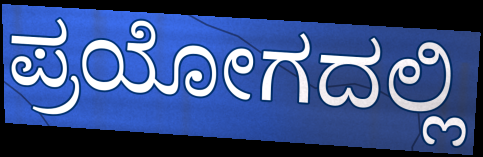
ಪ್ರಯೋಗದಲ್ಲಿ